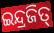
ଇନ୍ଦ୍ରଜିତ୍